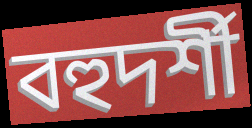
বহুদর্শী